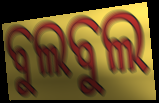
ବୁଲବୁଲ